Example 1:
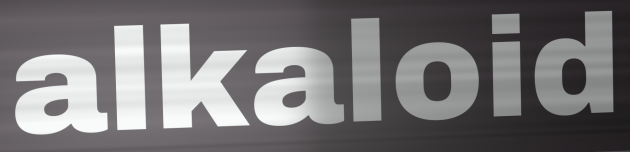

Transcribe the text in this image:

alkaloid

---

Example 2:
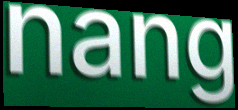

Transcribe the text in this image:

nang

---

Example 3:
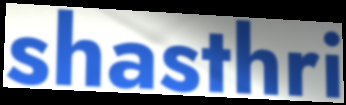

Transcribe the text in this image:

shasthri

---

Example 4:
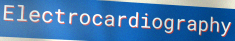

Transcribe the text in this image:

Electrocardiography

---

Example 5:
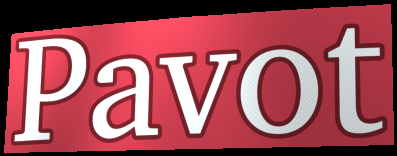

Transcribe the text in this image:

Pavot